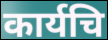
कार्यचि